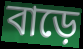
বাড়ে